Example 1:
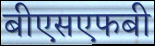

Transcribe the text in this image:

बीएसएफबी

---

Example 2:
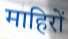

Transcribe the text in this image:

माहिरों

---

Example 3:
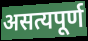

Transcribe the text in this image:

असत्यपूर्ण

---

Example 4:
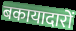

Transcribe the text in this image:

बकायादारों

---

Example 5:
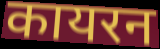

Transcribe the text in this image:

कायरन